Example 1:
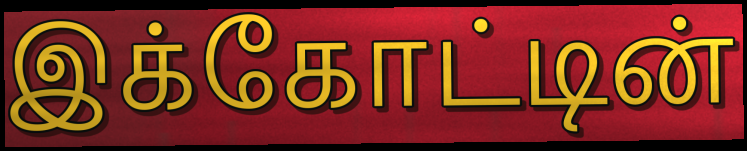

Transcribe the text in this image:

இக்கோட்டின்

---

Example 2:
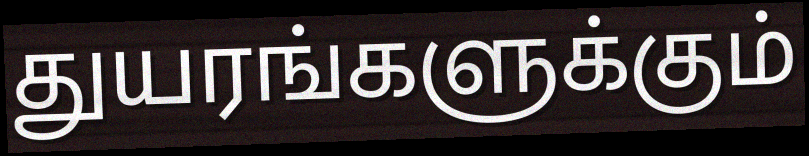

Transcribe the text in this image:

துயரங்களுக்கும்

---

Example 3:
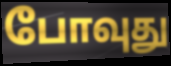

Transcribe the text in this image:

போவுது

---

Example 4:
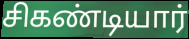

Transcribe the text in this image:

சிகண்டியார்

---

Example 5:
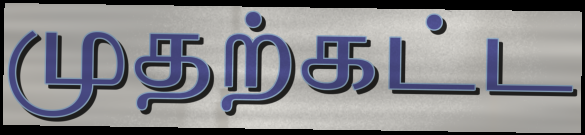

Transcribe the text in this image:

முதற்கட்ட